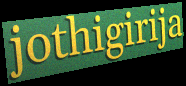
jothigirija